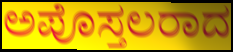
ಅಪೊಸ್ತಲರಾದ